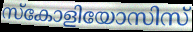
സ്കോളിയോസിസ്